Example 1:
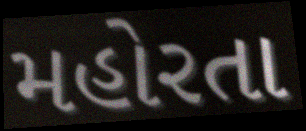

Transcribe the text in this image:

મહોરતા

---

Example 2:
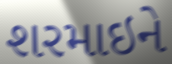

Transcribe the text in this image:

શરમાઇને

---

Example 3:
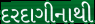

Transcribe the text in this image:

દરદાગીનાથી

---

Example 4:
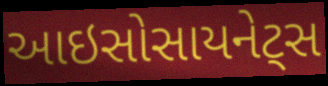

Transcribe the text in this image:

આઇસોસાયનેટ્સ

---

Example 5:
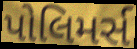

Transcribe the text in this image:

પોલિમર્સ